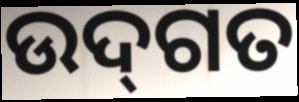
ଉଦ୍‌ଗତ